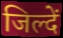
जिल्दें